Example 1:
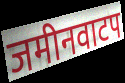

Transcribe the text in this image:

जमीनवाटप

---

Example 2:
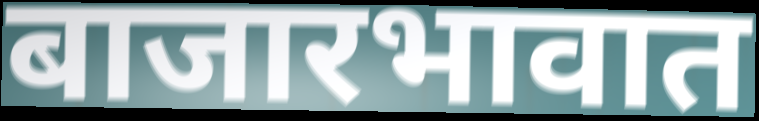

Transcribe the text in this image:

बाजारभावात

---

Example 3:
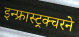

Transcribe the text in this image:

इन्फ्रास्ट्रक्चरने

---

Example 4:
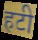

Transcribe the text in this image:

हटी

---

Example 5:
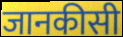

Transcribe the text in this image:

जानकीसी